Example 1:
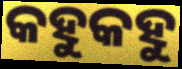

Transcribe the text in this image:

କହୁକହୁ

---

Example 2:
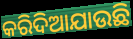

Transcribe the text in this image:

କରିଦିଆଯାଉଛି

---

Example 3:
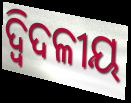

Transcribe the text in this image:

ଦ୍ବିଦଳୀୟ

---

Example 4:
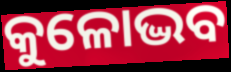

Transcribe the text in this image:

କୁଳୋଦ୍ଭବ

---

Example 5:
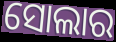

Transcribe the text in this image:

ସୋଲାର